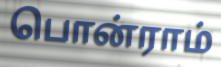
பொன்ராம்